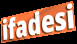
ifadesi